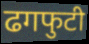
ढगफुटी